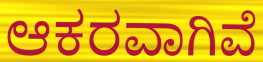
ಆಕರವಾಗಿವೆ